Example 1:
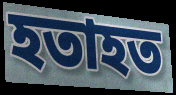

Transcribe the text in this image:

হতাহত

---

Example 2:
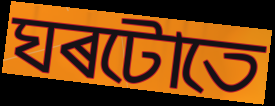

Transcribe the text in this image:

ঘৰটোতে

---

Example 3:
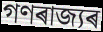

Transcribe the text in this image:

গণৰাজ্যৰ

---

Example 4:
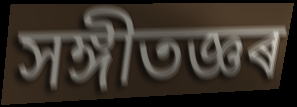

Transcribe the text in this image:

সঙ্গীতজ্ঞৰ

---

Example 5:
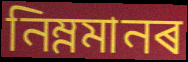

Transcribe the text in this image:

নিম্নমানৰ